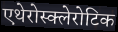
एथेरोस्क्लेरोटिक